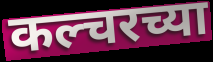
कल्चरच्या